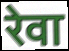
रेवा